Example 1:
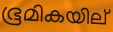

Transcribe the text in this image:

ഭൂമികയില്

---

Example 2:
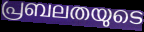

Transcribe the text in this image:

പ്രബലതയുടെ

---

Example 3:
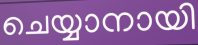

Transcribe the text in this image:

ചെയ്യാനായി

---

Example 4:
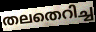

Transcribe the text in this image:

തലതെറിച്ച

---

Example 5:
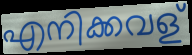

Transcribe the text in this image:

എനിക്കവള്